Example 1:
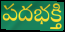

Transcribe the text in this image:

పదభక్తి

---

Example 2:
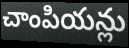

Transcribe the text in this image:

చాంపియన్లు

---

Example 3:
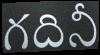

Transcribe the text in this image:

గదినీ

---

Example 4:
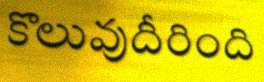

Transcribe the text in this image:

కొలువుదీరింది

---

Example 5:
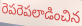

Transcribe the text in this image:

రెపరెపలాడించిన